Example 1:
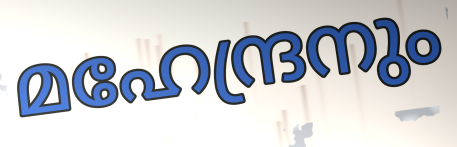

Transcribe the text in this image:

മഹേന്ദ്രനും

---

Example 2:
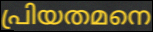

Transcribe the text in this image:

പ്രിയതമനെ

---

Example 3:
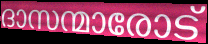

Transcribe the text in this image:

ദാസന്മാരോട്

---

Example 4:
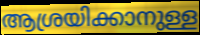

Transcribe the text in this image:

ആശ്രയിക്കാനുള്ള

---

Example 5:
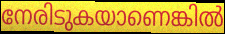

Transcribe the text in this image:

നേരിടുകയാണെങ്കിൽ